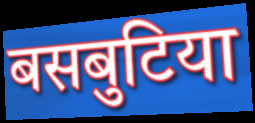
बसबुटिया